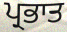
ਪ੍ਰਭਾਤ